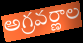
అగ్రవర్ణాల